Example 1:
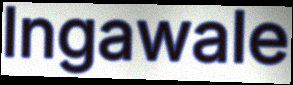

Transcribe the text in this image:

Ingawale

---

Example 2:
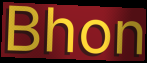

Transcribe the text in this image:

Bhon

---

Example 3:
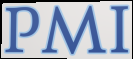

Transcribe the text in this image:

PMI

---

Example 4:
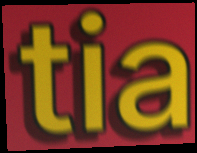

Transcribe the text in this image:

tia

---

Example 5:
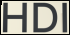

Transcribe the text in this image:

HDI